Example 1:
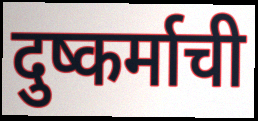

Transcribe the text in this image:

दुष्कर्माची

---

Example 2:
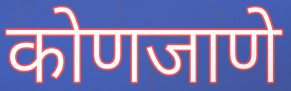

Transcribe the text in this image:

कोणजाणे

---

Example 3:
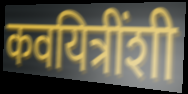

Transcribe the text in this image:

कवयित्रींशी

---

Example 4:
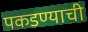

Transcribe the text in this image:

पकडण्याची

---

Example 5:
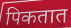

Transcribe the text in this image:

पिकतात